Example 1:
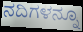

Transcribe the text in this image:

ನದಿಗಳನ್ನೂ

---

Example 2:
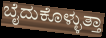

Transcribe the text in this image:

ಬೈದುಕೊಳ್ಳುತ್ತಾ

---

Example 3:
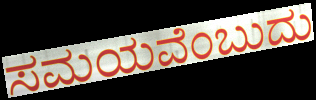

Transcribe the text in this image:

ಸಮಯವೆಂಬುದು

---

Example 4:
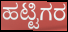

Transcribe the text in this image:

ಹಟ್ಟಿಗರ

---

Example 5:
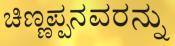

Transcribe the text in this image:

ಚಿಣ್ಣಪ್ಪನವರನ್ನು